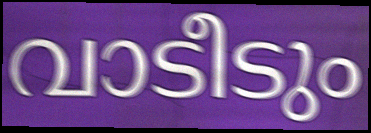
വാടീടും